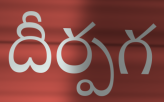
దీర్పగ